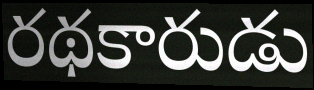
రథకారుడు